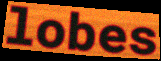
lobes